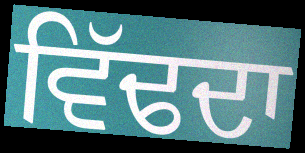
ਵਿੱਢਦਾ